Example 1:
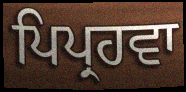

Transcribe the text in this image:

ਪਿਪ੍ਰਹਵਾ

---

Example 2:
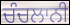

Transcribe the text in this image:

ਚੰਚਲਾਨੀ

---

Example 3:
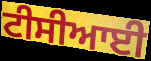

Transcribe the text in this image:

ਟੀਸੀਆਈ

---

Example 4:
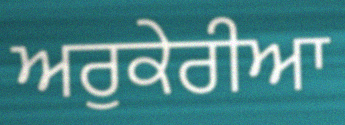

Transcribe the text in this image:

ਅਰੁਕੇਰੀਆ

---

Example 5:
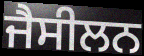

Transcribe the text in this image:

ਜੈਸੀਲਨ